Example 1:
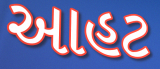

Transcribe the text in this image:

આહટ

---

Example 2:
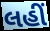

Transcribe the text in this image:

લહીં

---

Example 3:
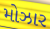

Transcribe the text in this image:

મોઝાર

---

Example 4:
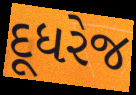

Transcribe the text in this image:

દૂધરેજ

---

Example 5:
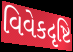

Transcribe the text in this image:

વિવેકદૃષ્ટિ